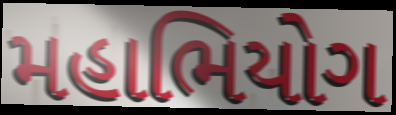
મહાભિયોગ